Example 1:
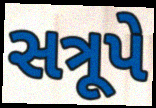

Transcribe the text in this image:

સત્રૂપે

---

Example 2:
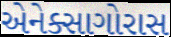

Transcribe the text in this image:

એનેક્સાગોરાસ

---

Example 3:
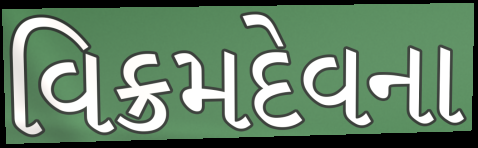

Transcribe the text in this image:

વિક્રમદેવના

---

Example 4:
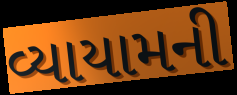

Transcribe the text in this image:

વ્યાયામની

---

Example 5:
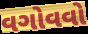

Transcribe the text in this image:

વગોવવો